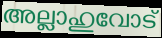
അല്ലാഹുവോട്